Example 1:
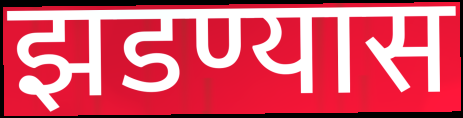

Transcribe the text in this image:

झडण्यास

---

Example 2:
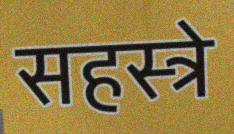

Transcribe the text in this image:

सहस्त्रे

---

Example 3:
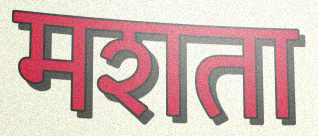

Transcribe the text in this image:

मशता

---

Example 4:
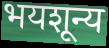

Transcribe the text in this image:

भयशून्य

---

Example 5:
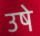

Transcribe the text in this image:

उषे